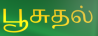
பூசுதல்